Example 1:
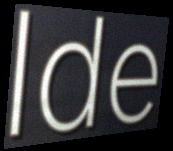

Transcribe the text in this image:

lde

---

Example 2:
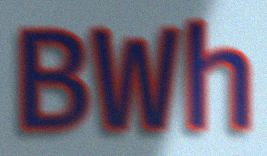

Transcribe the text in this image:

BWh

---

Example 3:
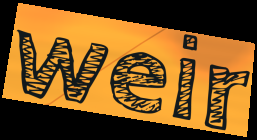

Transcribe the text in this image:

weir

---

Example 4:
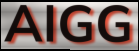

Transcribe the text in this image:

AIGG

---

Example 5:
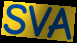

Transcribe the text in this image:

SVA